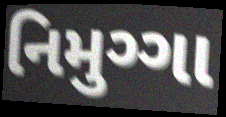
નિમુગ્ગા